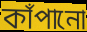
কাঁপানো